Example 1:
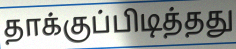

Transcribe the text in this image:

தாக்குப்பிடித்தது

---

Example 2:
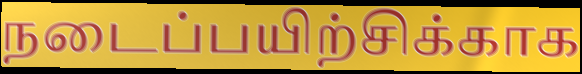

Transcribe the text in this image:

நடைப்பயிற்சிக்காக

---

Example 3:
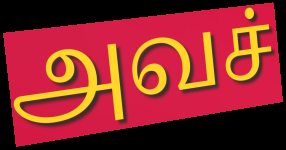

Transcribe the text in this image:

அவச்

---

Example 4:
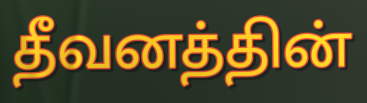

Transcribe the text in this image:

தீவனத்தின்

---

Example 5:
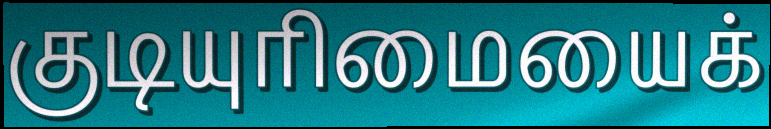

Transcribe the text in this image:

குடியுரிமையைக்